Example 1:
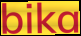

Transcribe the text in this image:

bika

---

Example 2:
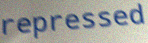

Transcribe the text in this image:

repressed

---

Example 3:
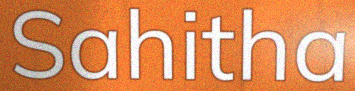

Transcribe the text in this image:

Sahitha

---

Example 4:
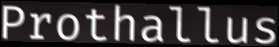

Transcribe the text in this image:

Prothallus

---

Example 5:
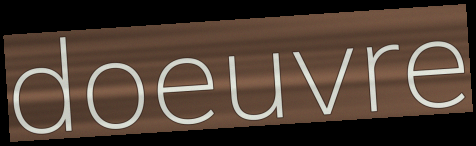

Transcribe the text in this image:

doeuvre